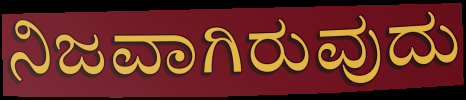
ನಿಜವಾಗಿರುವುದು